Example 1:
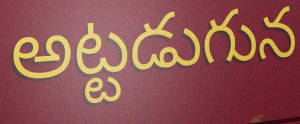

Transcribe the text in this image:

అట్టడుగున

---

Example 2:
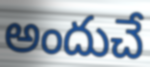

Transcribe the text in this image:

అందుచే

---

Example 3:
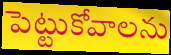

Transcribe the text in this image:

పెట్టుకోవాలను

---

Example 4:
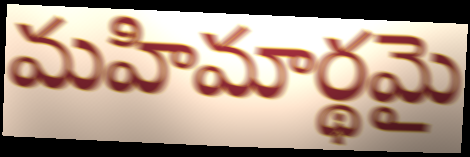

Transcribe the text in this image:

మహిమార్థమై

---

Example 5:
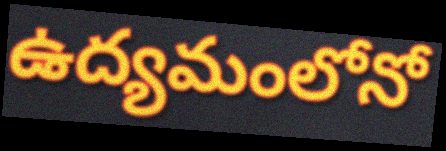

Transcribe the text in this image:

ఉద్యమంలోనో